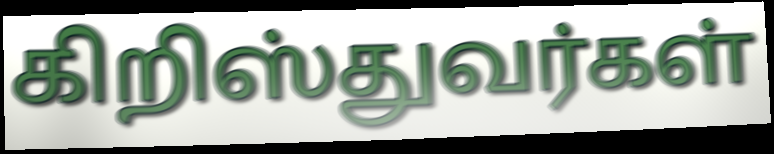
கிறிஸ்துவர்கள்